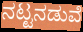
ನಟ್ಟನಡುವೆ